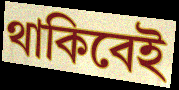
থাকিবেই